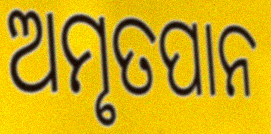
ଅମୃତପାନ